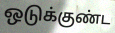
ஒடுக்குண்ட